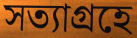
সত্যাগ্রহে